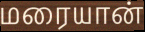
மரையான்